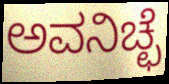
ಅವನಿಚ್ಛೆ